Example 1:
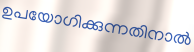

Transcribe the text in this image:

ഉപയോഗിക്കുന്നതിനാൽ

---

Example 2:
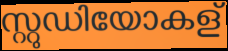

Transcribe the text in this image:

സ്റ്റുഡിയോകള്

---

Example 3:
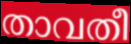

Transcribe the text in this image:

താവതീ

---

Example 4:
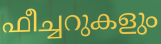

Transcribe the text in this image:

ഫീച്ചറുകളും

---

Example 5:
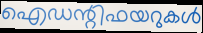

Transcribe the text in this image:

ഐഡന്റിഫയറുകൾ